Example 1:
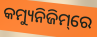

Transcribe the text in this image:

କମ୍ୟୁନିଜିମ୍‌ରେ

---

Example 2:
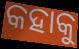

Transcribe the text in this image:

କହାକୁ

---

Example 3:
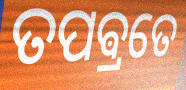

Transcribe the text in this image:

ତପଵ୍ରତେ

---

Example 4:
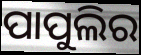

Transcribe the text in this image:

ପାପୁଲିର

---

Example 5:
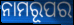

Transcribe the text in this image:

ନାମରୂପର